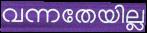
വന്നതേയില്ല